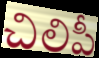
చిలిపీ